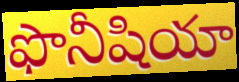
ఫొనీషియా